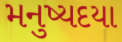
મનુષ્યદયા